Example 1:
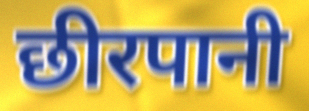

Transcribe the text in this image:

छीरपानी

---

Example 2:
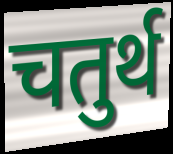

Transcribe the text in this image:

चतुर्थ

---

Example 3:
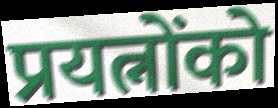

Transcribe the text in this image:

प्रयत्नोंको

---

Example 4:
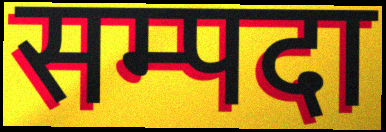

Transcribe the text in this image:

सम्पदा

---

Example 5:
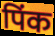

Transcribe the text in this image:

पिंक